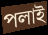
পলাই